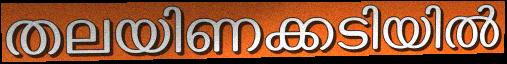
തലയിണക്കടിയിൽ